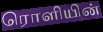
ரொளியின்